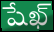
షేఖ్